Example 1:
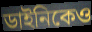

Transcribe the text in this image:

ডাইনিকেও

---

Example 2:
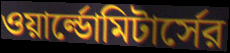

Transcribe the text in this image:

ওয়ার্ল্ডোমিটার্সের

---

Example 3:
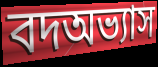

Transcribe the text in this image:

বদঅভ্যাস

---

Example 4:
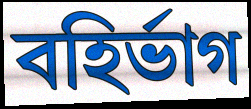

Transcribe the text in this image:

বহির্ভাগ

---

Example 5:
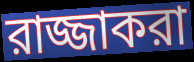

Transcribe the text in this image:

রাজ্জাকরা